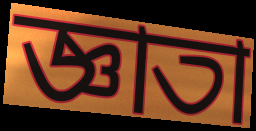
জ্ঞাতা